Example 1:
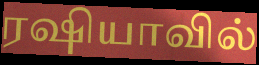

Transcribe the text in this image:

ரஷியாவில்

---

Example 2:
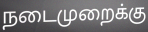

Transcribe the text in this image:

நடைமுறைக்கு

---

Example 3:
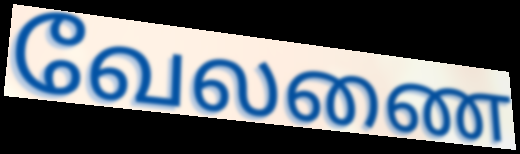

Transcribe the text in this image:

வேலணை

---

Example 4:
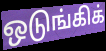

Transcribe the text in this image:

ஒடுங்கிக்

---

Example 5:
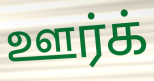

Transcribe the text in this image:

ஊர்க்